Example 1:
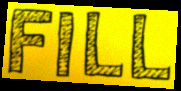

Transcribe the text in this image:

FILL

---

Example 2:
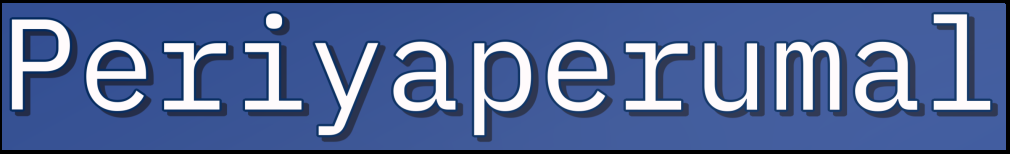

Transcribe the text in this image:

Periyaperumal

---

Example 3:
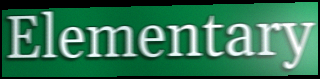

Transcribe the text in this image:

Elementary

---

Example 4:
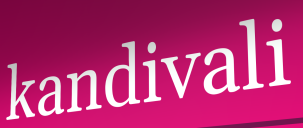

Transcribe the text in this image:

kandivali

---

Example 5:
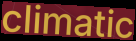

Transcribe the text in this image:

climatic